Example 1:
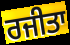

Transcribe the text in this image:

ਰਜੀਤਾ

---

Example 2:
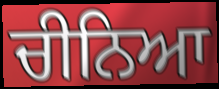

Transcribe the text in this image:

ਚੀਨਿਆ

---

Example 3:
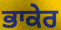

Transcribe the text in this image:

ਭਾਕੇਰ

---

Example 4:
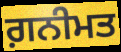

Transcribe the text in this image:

ਗ਼ਨੀਮਤ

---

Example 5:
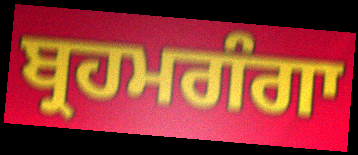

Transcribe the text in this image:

ਬ੍ਰਹਮਗੰਗਾ